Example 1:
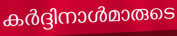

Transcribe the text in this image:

കർദ്ദിനാൾമാരുടെ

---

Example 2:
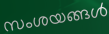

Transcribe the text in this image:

സംശയങ്ങൾ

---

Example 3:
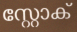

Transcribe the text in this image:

സ്റ്റോക്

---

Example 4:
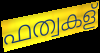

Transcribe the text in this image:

ഫത്വകള്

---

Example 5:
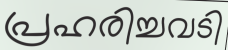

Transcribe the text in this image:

പ്രഹരിച്ചവടി